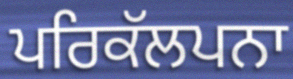
ਪਰਿਕੱਲਪਨਾ